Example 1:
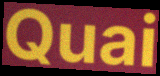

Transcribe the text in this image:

Quai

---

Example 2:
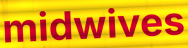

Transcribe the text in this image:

midwives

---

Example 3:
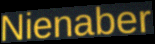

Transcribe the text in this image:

Nienaber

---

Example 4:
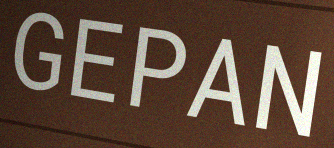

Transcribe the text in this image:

GEPAN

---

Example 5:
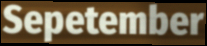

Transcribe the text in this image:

Sepetember